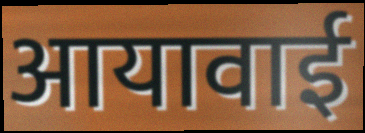
आयावाई